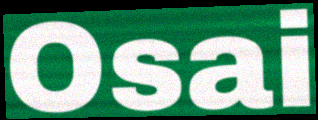
Osai